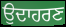
ਉਦਾਹਰਣ